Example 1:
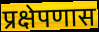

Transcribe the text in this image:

प्रक्षेपणास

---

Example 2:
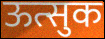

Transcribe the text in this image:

ऊत्सुक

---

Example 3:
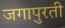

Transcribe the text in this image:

जगापुरती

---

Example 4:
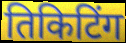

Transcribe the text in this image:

तिकिटिंग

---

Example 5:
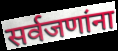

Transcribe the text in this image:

सर्वजणांना